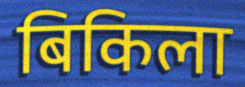
बिकिला